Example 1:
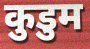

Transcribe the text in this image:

कुडुम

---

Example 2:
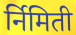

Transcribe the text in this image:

र्निमिती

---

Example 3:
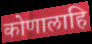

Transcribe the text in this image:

कोणालाहि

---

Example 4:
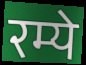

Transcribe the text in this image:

रम्ये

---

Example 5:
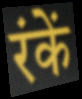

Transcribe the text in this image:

रंकें